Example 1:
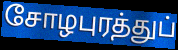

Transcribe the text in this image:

சோழபுரத்துப்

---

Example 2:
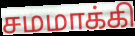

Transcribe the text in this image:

சமமாக்கி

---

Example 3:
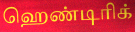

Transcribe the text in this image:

ஹெண்டிரிக்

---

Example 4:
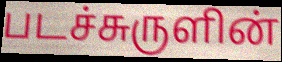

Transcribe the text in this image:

படச்சுருளின்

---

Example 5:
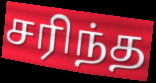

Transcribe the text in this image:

சரிந்த